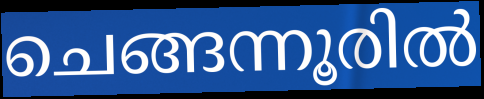
ചെങ്ങന്നൂരിൽ